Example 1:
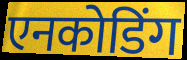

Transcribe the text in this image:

एनकोडिंग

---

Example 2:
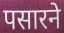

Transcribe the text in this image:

पसारने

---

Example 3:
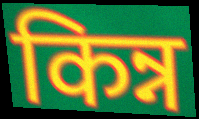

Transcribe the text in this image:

किन्न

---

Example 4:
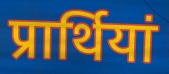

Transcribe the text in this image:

प्रार्थियां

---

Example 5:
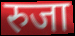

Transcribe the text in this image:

रुजा